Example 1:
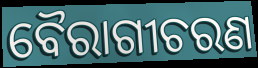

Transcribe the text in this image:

ବୈରାଗୀଚରଣ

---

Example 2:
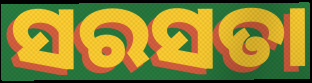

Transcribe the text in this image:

ସରସତା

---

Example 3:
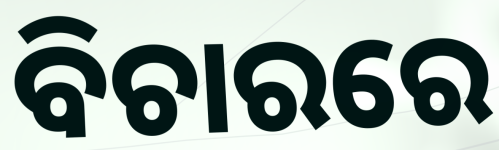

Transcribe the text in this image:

ବିଚାରରେ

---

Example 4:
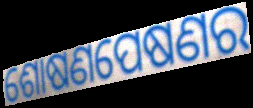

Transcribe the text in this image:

ଶୋଷଣପେଷଣର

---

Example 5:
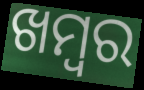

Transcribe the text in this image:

ଖମ୍ବର